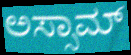
ಅಸ್ಸಾಮ್